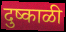
दुष्काळी